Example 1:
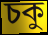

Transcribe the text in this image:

চকু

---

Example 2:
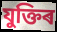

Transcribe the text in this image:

যুক্তিৰ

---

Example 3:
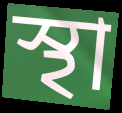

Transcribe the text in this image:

স্থা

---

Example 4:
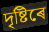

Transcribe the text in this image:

দৃষ্টিৰে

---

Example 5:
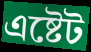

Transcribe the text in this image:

এষ্টেট